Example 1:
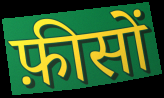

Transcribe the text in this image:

फ़ीसों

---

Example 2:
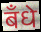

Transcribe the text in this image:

बँधे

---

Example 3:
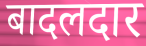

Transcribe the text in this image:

बादलदार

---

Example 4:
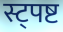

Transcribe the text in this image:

स्ट्पष्ट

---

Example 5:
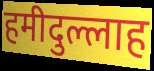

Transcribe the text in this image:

हमीदुल्लाह